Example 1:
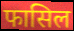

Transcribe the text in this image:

फासिल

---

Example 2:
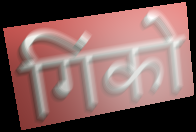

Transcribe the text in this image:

गिंको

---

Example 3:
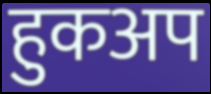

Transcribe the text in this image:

हुकअप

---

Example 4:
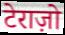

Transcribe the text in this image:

टेराज़ो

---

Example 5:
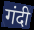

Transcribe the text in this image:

गंदी